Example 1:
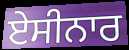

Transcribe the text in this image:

ਏਸੀਨਾਰ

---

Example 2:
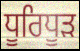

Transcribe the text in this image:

ਧੂਰਿਧੂੜ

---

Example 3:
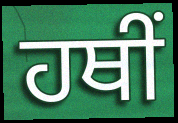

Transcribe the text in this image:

ਹਥੀਂ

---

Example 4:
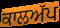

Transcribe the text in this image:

ਕਾਲਅੱਪ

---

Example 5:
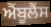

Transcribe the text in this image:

ਐੰਬੂਲੈੰਸ